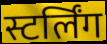
स्टर्लिंग